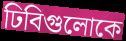
ঢিবিগুলোকে